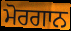
ਮੋਰਗਾਨ